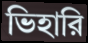
ভিহারি